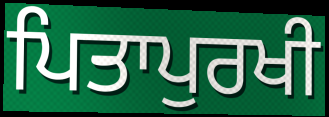
ਪਿਤਾਪੁਰਖੀ